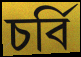
চর্বি